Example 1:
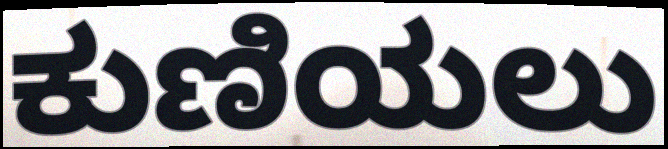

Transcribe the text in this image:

ಕುಣಿಯಲು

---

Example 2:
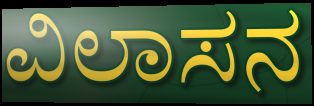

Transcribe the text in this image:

ವಿಲಾಸನ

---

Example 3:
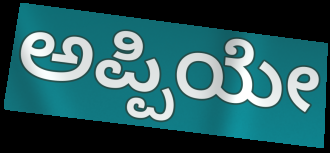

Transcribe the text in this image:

ಅಪ್ಪಿಯೇ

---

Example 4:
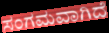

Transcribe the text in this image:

ಸಂಗಮವಾಗಿದೆ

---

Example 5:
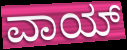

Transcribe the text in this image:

ವಾಯ್